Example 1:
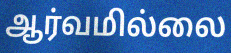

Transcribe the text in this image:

ஆர்வமில்லை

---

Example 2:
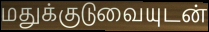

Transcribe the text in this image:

மதுக்குடுவையுடன்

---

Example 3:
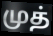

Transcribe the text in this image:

முத்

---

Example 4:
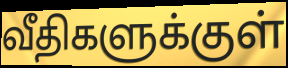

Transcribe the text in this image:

வீதிகளுக்குள்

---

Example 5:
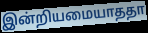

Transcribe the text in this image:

இன்றியமையாததா